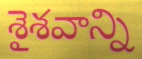
శైశవాన్ని